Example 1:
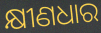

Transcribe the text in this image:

କ୍ଷୀଣଧାର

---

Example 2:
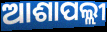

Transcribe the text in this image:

ଆଶାପଲ୍ଲୀ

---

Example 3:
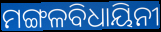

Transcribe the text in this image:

ମଙ୍ଗଳବିଧାୟିନୀ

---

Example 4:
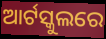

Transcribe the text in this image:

ଆର୍ଟସ୍କୁଲରେ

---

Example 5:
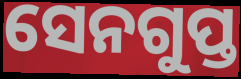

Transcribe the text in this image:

ସେନଗୁପ୍ତ